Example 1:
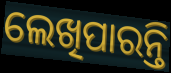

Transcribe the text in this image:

ଲେଖିପାରନ୍ତି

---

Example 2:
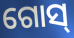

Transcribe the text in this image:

ଗୋସ୍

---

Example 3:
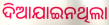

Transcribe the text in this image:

ଦିଆଯାଇନଥିଲା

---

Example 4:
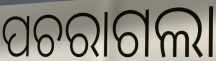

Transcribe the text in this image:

ପଚରାଗଲା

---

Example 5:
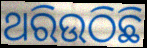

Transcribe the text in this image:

ଥରିଉଠିଛି